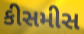
કીસમીસ